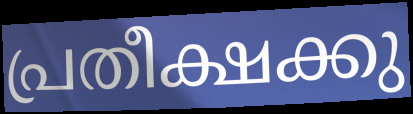
പ്രതീക്ഷക്കു